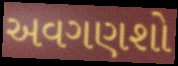
અવગણશો